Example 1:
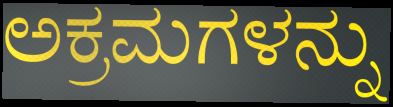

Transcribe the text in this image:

ಅಕ್ರಮಗಳನ್ನು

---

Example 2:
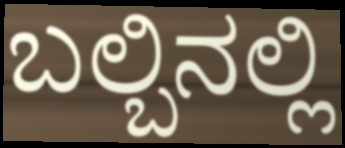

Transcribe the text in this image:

ಬಲ್ಬಿನಲ್ಲಿ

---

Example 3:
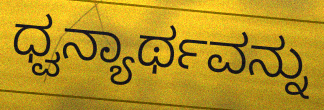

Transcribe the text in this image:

ಧ್ವನ್ಯಾರ್ಥವನ್ನು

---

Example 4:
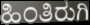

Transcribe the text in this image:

ಹಿಂತಿರುಗಿ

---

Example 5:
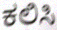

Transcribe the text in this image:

ಕಲಿಸಿ